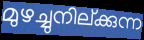
മുഴച്ചുനില്ക്കുന്ന